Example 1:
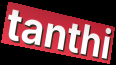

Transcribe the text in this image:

tanthi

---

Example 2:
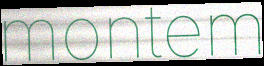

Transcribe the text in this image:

montem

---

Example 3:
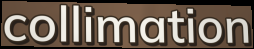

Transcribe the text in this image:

collimation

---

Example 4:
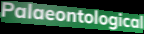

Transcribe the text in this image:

Palaeontological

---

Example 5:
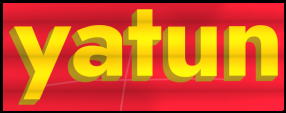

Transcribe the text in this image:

yatun